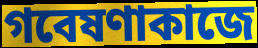
গবেষণাকাজে